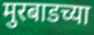
मुरबाडच्या